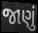
જાણું